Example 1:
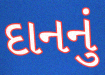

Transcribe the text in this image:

દાનનું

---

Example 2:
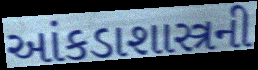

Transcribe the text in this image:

આંકડાશાસ્ત્રની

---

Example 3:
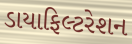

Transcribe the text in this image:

ડાયાફિલ્ટરેશન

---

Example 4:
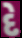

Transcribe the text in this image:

દે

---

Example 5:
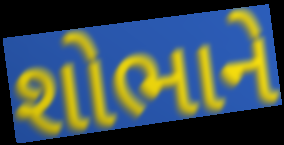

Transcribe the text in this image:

શોભાને